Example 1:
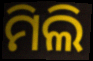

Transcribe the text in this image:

ମିଲି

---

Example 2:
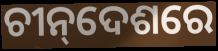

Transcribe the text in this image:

ଚୀନ୍‌ଦେଶରେ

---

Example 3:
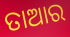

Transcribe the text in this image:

ତାଆର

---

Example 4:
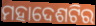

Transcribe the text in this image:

ମହାଦେଶଟିର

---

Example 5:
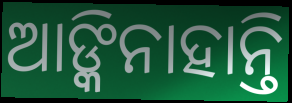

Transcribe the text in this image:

ଆଙ୍କିନାହାନ୍ତି